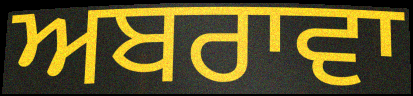
ਅਬਰਾਵਾ